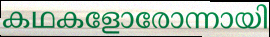
കഥകളോരോന്നായി